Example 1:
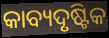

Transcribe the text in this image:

କାବ୍ୟଦୃଷ୍ଟିକ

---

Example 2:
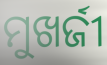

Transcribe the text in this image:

ମୁଖର୍ଜୀ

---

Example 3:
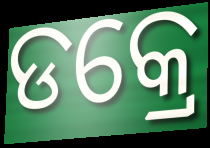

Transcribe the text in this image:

ଡକ୍ରେ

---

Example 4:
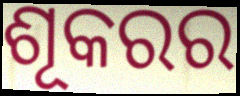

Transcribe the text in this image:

ଶୂକରର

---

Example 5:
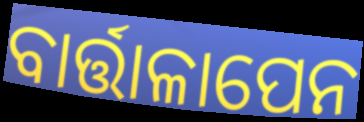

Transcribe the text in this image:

ବାର୍ତ୍ତାଳାପେନ